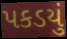
પકડયું